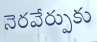
నెరవేర్పుకు